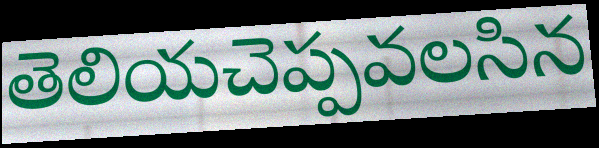
తెలియచెప్పవలసిన